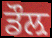
ਡੌਲ਼